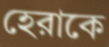
হেরাকে